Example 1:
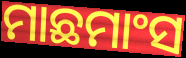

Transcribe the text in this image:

ମାଛମାଂସ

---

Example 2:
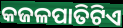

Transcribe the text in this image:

କଜଳପାତିଟିଏ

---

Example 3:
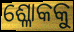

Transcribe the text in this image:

ଶ୍ଳୋକକୁ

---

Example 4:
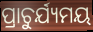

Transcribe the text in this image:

ପ୍ରାଚୁର୍ଯ୍ୟମୟ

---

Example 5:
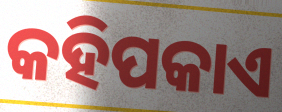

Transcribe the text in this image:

କହିପକାଏ